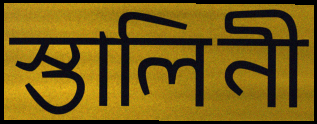
স্তালিনী